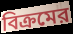
বিক্রমের